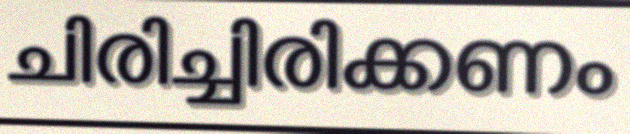
ചിരിച്ചിരിക്കണം